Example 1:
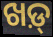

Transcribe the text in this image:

ଖଡ଼୍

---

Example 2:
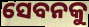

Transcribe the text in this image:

ସେବନକୁ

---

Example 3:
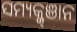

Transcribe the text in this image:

ସମ୍ୟକ୍ଜ୍ଞାନ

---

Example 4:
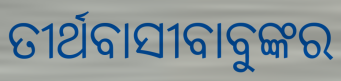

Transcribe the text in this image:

ତୀର୍ଥବାସୀବାବୁଙ୍କର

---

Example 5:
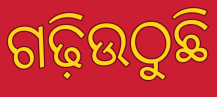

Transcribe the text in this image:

ଗଢ଼ିଉଠୁଛି